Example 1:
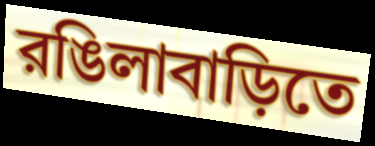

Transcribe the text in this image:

রঙিলাবাড়িতে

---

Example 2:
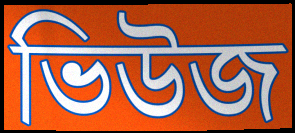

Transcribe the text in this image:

ভিউজ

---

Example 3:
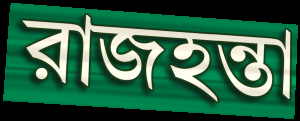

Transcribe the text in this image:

রাজহন্তা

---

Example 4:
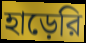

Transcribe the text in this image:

হাড়েরি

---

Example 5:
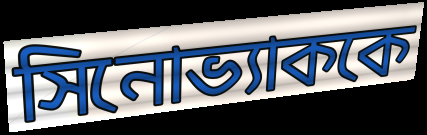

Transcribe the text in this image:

সিনোভ্যাককে